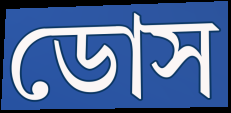
ডোস